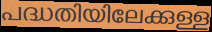
പദ്ധതിയിലേക്കുള്ള